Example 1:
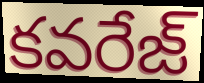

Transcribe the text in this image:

కవరేజ్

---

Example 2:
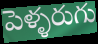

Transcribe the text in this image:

పెళ్ళరుగు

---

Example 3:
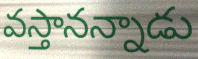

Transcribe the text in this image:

వస్తానన్నాడు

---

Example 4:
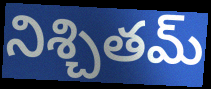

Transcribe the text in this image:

నిశ్చితమ్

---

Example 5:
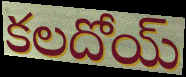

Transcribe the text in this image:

కలదోయ్